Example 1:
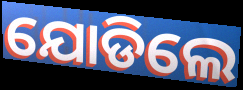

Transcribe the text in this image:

ଯୋଡିଲେ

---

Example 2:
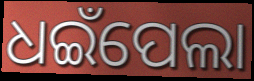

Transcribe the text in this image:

ଧଇଁପେଲା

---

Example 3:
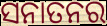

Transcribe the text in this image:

ସନାତନର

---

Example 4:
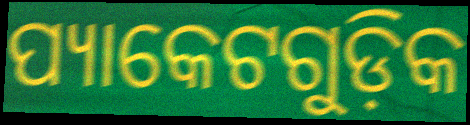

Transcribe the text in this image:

ପ୍ୟାକେଟଗୁଡ଼ିକ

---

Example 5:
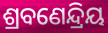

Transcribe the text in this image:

ଶ୍ରବଣେନ୍ଦ୍ରିୟ